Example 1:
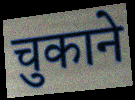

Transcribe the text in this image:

चुकाने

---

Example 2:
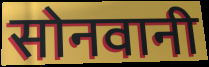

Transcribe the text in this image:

सोनवानी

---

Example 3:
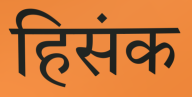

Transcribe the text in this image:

हिसंक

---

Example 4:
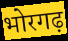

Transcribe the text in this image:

भोरगढ़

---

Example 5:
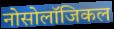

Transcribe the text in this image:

नोसोलॉजिकल